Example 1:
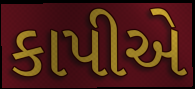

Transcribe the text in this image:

કાપીએ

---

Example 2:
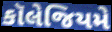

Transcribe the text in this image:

કૉલેજિયમે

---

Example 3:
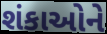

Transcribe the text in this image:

શંકાઓને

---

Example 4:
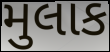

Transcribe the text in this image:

મુલાક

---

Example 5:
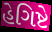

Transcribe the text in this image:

હેગિષ્ટે